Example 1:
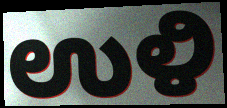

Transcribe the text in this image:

ಉಳಿ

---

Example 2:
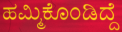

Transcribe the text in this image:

ಹಮ್ಮಿಕೊಂಡಿದ್ದೆ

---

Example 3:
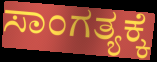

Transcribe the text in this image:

ಸಾಂಗತ್ಯಕ್ಕೆ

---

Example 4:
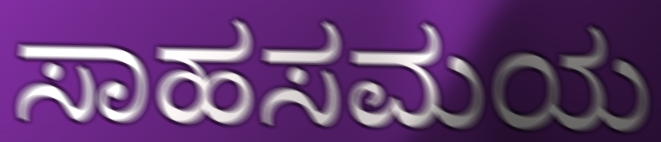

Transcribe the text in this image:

ಸಾಹಸಮಯ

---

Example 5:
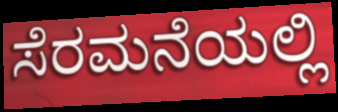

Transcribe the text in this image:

ಸೆರಮನೆಯಲ್ಲಿ